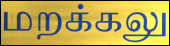
மறக்கலு